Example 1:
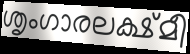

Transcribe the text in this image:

ശൃംഗാരലക്ഷ്മീ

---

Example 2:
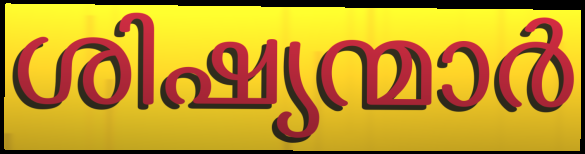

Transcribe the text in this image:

ശിഷ്യന്മാർ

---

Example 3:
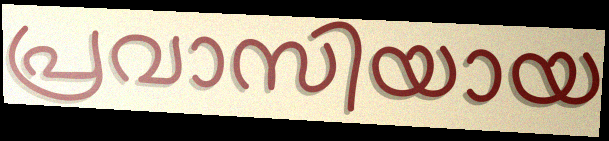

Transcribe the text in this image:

പ്രവാസിയായ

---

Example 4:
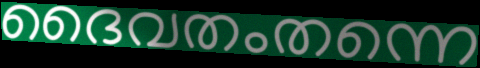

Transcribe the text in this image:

ദൈവതംതന്നെ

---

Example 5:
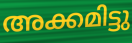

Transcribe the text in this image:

അക്കമിട്ടു